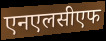
एनएलसीएफ